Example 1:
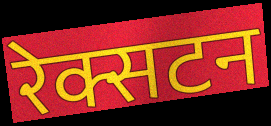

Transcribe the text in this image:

रेक्सटन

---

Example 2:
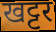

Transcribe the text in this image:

खट्टर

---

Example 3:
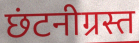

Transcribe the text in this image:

छंटनीग्रस्त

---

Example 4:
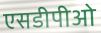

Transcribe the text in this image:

एसडीपीओ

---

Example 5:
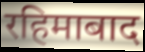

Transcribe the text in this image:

रहिमाबाद